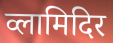
व्लामिदिर